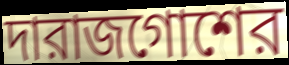
দারাজগোশের